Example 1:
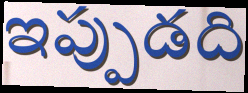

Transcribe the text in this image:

ఇప్పుడది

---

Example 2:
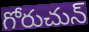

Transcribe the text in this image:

గోరుచున్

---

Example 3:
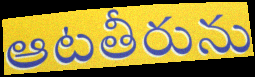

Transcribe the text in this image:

ఆటతీరును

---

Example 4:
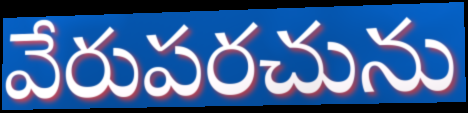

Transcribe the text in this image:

వేరుపరచును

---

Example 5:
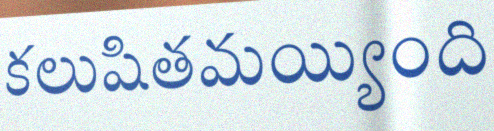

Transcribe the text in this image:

కలుషితమయ్యింది